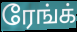
ரேங்க்